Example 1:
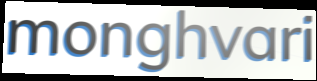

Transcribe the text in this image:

monghvari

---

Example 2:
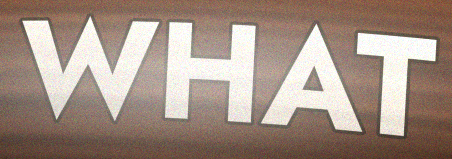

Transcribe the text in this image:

WHAT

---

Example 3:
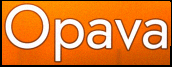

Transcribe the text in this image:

Opava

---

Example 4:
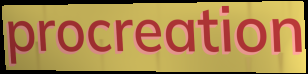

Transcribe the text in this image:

procreation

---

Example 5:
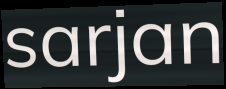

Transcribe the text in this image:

sarjan